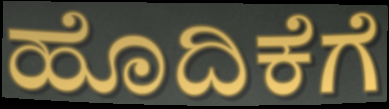
ಹೊದಿಕೆಗೆ